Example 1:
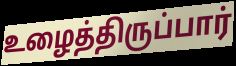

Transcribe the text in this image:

உழைத்திருப்பார்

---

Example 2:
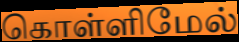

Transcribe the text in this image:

கொள்ளிமேல்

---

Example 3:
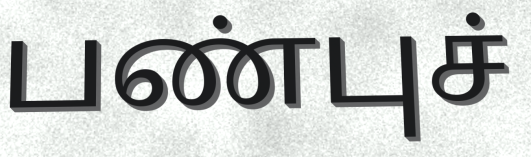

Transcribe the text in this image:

பண்புச்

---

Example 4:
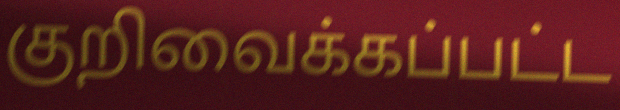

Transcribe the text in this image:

குறிவைக்கப்பட்ட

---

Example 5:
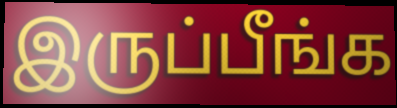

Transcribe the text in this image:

இருப்பீங்க